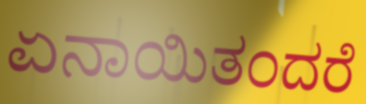
ಏನಾಯಿತಂದರೆ